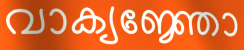
വാക്യജ്ഞോ